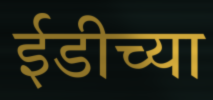
ईडीच्या